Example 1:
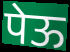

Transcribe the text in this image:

पेऊ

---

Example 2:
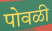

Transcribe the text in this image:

पोवळी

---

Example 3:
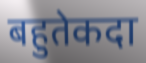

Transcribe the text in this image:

बहुतेकदा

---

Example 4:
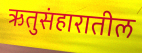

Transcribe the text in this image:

ऋतुसंहारातील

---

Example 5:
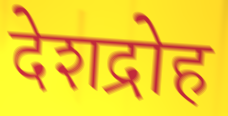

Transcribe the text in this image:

देशद्रोह